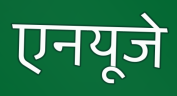
एनयूजे